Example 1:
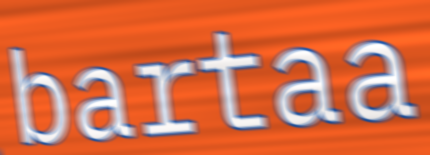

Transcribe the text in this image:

bartaa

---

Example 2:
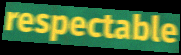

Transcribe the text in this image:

respectable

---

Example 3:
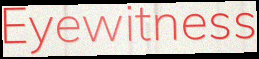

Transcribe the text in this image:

Eyewitness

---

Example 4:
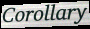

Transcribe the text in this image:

Corollary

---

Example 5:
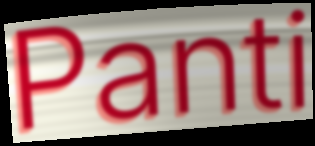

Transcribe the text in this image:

Panti